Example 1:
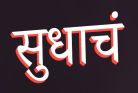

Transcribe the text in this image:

सुधाचं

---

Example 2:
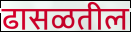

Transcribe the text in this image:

ढासळतील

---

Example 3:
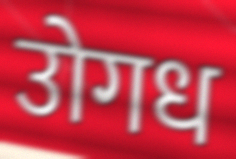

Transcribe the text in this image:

उोगध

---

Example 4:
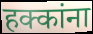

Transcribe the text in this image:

हक्कांना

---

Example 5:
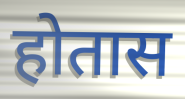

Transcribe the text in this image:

होतास